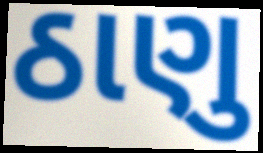
ઠાણુ